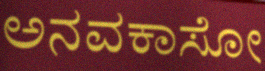
ಅನವಕಾಸೋ